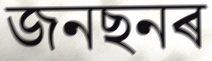
জনছনৰ